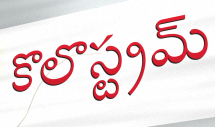
కొలొస్ట్రమ్